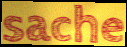
sache